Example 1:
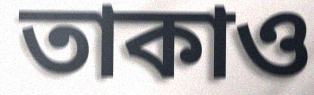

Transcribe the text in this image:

তাকাও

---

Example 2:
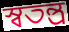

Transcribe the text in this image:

স্বতন্ত্র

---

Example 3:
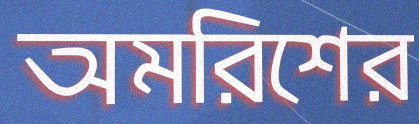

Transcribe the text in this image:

অমরিশের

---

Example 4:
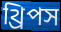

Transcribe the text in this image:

থ্রিপস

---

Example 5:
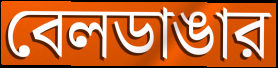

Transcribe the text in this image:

বেলডাঙার